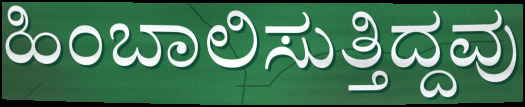
ಹಿಂಬಾಲಿಸುತ್ತಿದ್ದವು